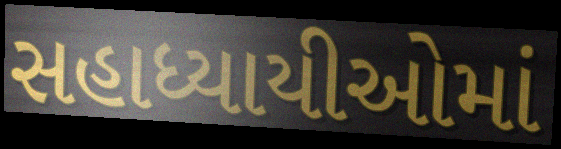
સહાધ્યાયીઓમાં